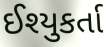
ઈશ્યુકર્તા